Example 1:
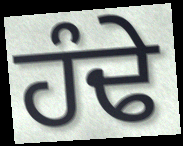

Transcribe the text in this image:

ਹੰਢੇ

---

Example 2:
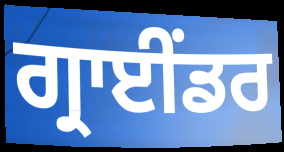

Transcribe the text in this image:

ਗ੍ਰਾਈਂਡਰ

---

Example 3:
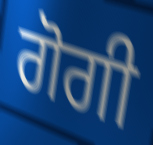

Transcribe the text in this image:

ਗੋਗੀ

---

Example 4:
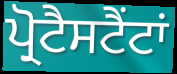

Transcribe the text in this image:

ਪ੍ਰੋਟੈਸਟੈਂਟਾਂ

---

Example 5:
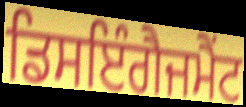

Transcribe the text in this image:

ਡਿਸਇੰਗੈਜਮੈਂਟ